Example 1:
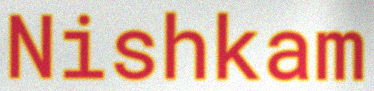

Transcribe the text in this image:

Nishkam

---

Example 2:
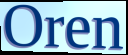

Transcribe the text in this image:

Oren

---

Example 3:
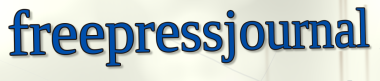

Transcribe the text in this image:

freepressjournal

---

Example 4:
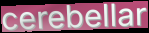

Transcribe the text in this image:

cerebellar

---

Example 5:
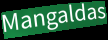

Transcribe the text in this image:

Mangaldas